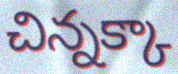
చిన్నక్కా